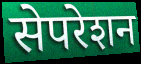
सेपरेशन